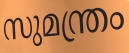
സുമന്ത്രം